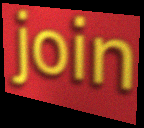
join